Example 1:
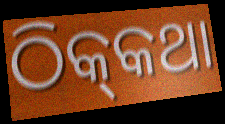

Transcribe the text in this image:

ଠିକ୍‌କଥା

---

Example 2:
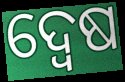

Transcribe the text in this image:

ଦ୍ବେଷ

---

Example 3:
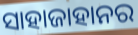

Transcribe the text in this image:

ସାହାଜାହାନର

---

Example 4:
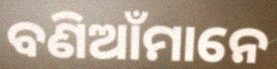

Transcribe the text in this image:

ବଣିଆଁମାନେ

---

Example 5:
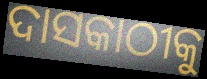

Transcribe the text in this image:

ଦାସକାଠୀକୁ